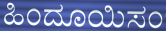
ಹಿಂದೂಯಿಸಂ